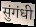
सुंगंधी